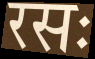
रसः